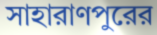
সাহারাণপুরের